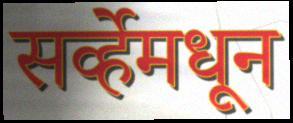
सर्व्हेमधून